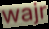
wajr